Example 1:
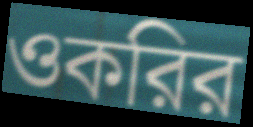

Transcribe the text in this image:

ওকরির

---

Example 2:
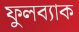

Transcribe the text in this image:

ফুলব্যাক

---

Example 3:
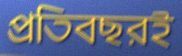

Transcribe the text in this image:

প্রতিবছরই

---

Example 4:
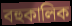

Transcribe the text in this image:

বহুকালিক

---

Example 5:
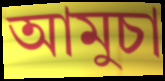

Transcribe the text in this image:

আমুচা